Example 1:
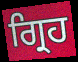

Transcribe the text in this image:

ਗ੍ਰਿਹ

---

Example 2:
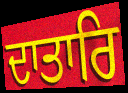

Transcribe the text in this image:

ਦਾਤਾਰਿ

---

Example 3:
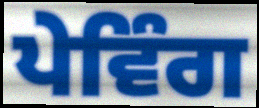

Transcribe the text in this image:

ਪੇਵਿੰਗ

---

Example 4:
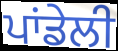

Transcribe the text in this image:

ਪਾਂਡੇਲੀ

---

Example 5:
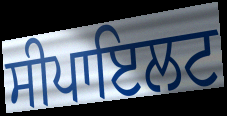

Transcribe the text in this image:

ਸੀਪਾਇਲਟ